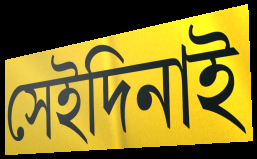
সেইদিনাই